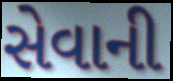
સેવાની